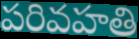
పరివహతి